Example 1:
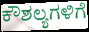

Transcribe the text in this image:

ಕೌಶಲ್ಯಗಳಿಗೆ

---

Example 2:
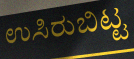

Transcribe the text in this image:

ಉಸಿರುಬಿಟ್ಟ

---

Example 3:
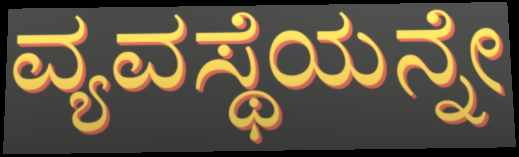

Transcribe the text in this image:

ವ್ಯವಸ್ಥೆಯನ್ನೇ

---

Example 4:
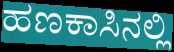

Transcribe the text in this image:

ಹಣಕಾಸಿನಲ್ಲಿ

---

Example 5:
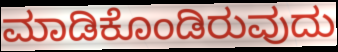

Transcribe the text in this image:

ಮಾಡಿಕೊಂಡಿರುವುದು